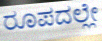
ರೂಪದಲ್ಲೇ